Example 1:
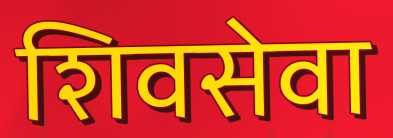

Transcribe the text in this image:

शिवसेवा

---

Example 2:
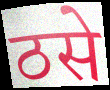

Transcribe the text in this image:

ठसे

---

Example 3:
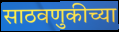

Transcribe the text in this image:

साठवणुकीच्या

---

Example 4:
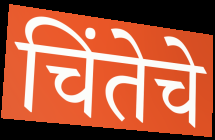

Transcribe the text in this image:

चिंतेचे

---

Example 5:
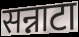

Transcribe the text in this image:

सन्नाटा